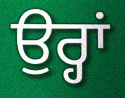
ਉਰ੍ਹਾਂ